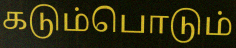
கடும்பொடும்